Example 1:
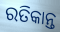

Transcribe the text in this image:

ରତିକାନ୍ତ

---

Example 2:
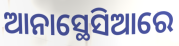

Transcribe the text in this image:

ଆନାସ୍ଥେସିଆରେ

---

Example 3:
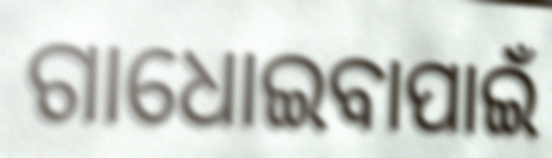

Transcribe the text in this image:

ଗାଧୋଇବାପାଇଁ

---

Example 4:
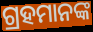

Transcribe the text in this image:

ଗ୍ରହମାନଙ୍କ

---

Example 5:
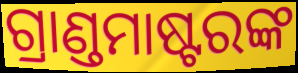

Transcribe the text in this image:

ଗ୍ରାଣ୍ଡମାଷ୍ଟରଙ୍କ